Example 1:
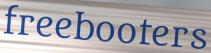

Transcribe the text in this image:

freebooters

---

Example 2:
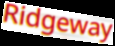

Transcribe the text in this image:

Ridgeway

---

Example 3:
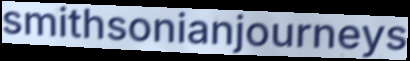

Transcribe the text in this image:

smithsonianjourneys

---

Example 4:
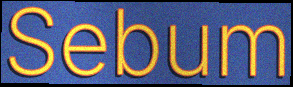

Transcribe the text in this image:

Sebum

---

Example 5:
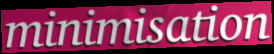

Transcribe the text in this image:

minimisation